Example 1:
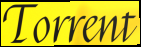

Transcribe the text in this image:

Torrent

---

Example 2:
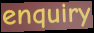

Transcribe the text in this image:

enquiry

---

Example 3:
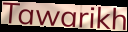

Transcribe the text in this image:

Tawarikh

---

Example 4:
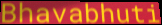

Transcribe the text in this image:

Bhavabhuti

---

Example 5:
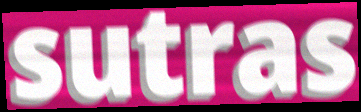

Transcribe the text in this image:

sutras